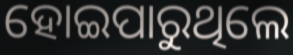
ହୋଇପାରୁଥିଲେ